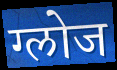
ग्लोज